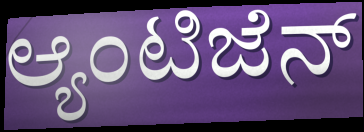
ಆ್ಯಂಟಿಜೆನ್